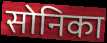
सोनिका